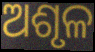
ଅଶୃଳ